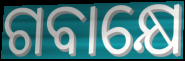
ଗବାକ୍ଷେ